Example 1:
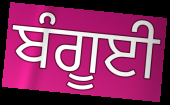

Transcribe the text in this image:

ਬੰਗੂਈ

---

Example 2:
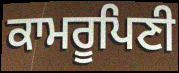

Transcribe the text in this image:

ਕਾਮਰੂਪਿਣੀ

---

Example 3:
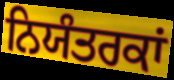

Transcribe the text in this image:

ਨਿਯੰਤਰਕਾਂ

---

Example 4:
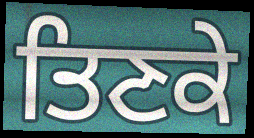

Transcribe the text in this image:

ਤਿਣਕੇ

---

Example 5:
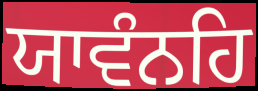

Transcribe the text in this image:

ਯਾਵੰਨਹਿ